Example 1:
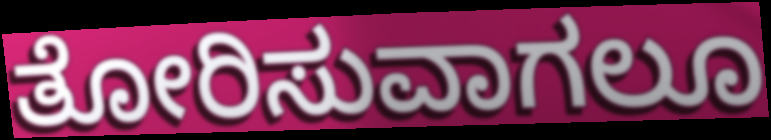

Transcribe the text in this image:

ತೋರಿಸುವಾಗಲೂ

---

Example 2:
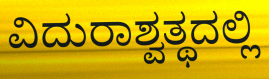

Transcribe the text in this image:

ವಿದುರಾಶ್ವತ್ಥದಲ್ಲಿ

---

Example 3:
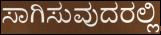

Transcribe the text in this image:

ಸಾಗಿಸುವುದರಲ್ಲಿ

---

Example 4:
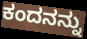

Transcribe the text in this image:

ಕಂದನನ್ನು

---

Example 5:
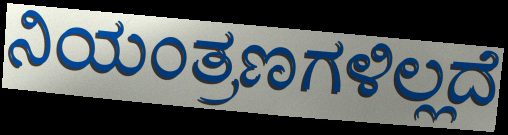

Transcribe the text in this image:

ನಿಯಂತ್ರಣಗಳಿಲ್ಲದೆ